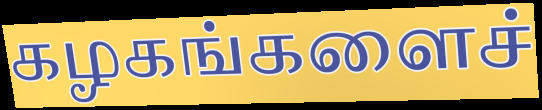
கழகங்களைச்